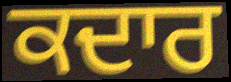
ਕਦਾਰ